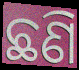
ଛଣି